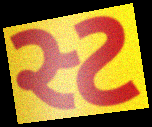
સ્ટ